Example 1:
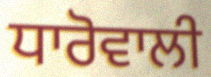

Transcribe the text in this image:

ਧਾਰੋਵਾਲੀ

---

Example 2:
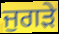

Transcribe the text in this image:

ਜੁਗੜੇ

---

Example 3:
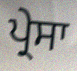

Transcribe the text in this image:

ਪ੍ਰੇਸਾ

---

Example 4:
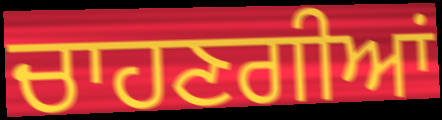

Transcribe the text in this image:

ਚਾਹਣਗੀਆਂ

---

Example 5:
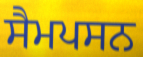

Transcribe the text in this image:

ਸੈਮਪਸਨ